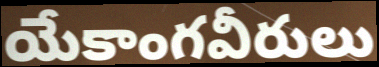
యేకాంగవీరులు